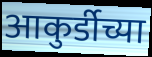
आकुर्डीच्या